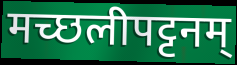
मच्छलीपट्टनम्